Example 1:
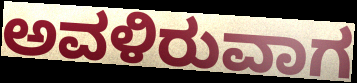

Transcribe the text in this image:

ಅವಳಿರುವಾಗ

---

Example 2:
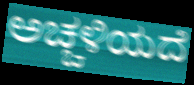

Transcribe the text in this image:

ಅಚ್ಚಳಿಯದೆ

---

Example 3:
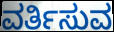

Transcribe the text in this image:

ವರ್ತಿಸುವ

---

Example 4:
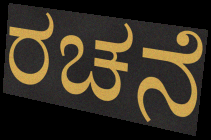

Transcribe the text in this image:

ರಚನೆ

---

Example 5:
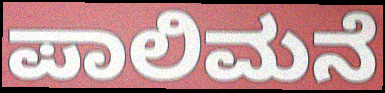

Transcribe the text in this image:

ಪಾಲಿಮನೆ